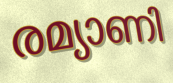
രമ്യാണി